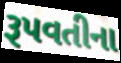
રૂપવતીના